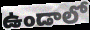
ఉండాలో